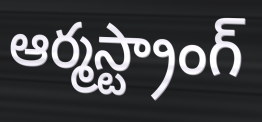
ఆర్మస్ట్రాంగ్